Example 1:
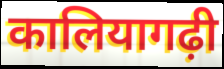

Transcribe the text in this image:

कालियागढ़ी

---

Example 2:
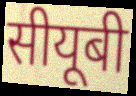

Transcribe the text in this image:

सीयूबी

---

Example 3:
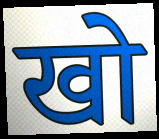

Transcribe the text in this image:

खो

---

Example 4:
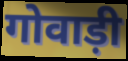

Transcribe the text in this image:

गोवाड़ी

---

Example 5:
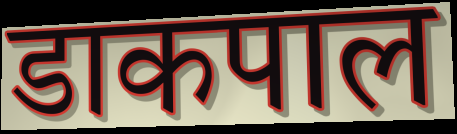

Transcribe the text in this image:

डाकपाल